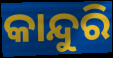
କାନ୍ଦୁରି